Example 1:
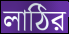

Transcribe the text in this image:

লাঠির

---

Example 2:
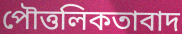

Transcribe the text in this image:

পৌত্তলিকতাবাদ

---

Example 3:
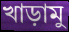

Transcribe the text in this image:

খাড়ামু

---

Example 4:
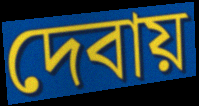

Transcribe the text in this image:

দেবায়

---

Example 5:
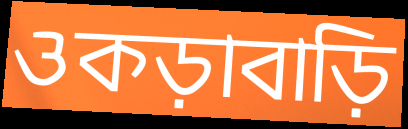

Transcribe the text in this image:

ওকড়াবাড়ি